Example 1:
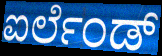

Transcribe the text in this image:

ಐರ್ಲೆಂಡ್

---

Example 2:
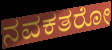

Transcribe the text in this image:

ನವಕತರೋ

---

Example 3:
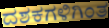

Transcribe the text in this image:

ದಶಕಗಳಿಗಿಂತ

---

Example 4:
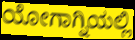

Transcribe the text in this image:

ಯೋಗಾಗ್ನಿಯಲ್ಲಿ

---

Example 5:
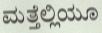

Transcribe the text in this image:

ಮತ್ತೆಲ್ಲಿಯೂ